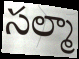
సల్మా